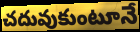
చదువుకుంటూనే